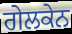
ਗੇਲਕੇਨ